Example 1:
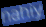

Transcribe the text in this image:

nahiy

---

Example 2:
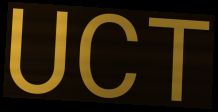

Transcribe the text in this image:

UCT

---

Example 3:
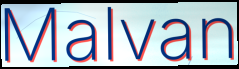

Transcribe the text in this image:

Malvan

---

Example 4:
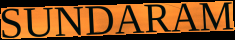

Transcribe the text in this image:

SUNDARAM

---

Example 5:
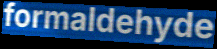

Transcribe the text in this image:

formaldehyde